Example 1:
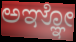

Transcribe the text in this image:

ಅಞ್ಞೋ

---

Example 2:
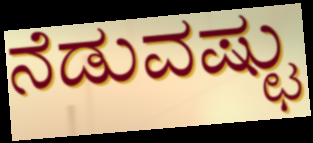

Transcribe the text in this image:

ನೆಡುವಷ್ಟು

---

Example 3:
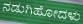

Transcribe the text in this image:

ನಡುಗಿಹೋದಳು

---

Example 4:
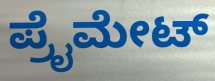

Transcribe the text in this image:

ಪ್ರೈಮೇಟ್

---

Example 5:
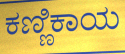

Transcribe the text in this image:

ಕಣ್ಣಿಕಾಯ